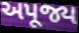
અપૂજ્ય